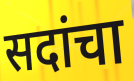
सदांचा